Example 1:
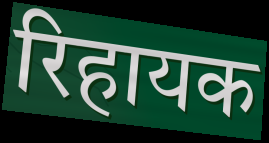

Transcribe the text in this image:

रिहायक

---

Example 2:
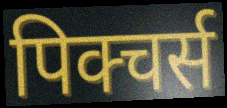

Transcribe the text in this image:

पिक्चर्स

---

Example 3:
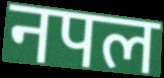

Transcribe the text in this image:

नपल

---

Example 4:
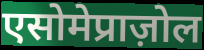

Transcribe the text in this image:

एसोमेप्राज़ोल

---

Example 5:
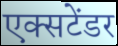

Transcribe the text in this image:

एक्सटेंडर